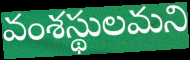
వంశస్థులమని